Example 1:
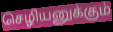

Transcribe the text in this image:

செழியனுக்கும்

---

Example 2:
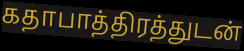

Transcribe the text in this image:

கதாபாத்திரத்துடன்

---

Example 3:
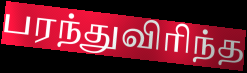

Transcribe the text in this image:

பரந்துவிரிந்த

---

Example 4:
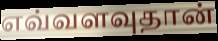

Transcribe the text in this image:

எவ்வளவுதான்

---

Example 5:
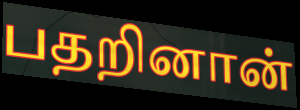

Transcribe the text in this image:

பதறினான்